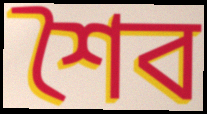
শৈব